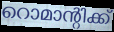
റൊമാന്റിക്ക്